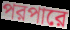
পরপারে